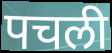
पचली